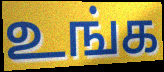
உங்க